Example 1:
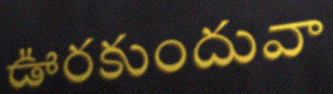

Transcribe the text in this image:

ఊరకుందువా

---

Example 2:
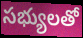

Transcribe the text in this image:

సభ్యులతో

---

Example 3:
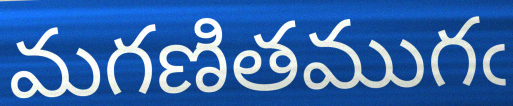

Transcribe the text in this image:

మగణితముగఁ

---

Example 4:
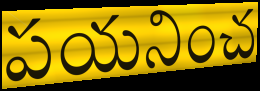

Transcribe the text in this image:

పయనించ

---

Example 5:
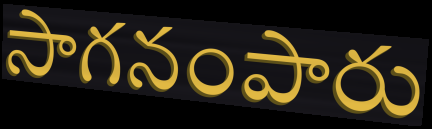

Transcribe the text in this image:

సాగనంపారు